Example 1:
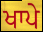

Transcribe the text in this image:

ਖਾਪੇ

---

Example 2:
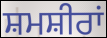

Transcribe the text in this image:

ਸ਼ਮਸ਼ੀਰਾਂ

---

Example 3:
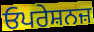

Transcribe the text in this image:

ਓਪਰੇਸ਼ਨਜ਼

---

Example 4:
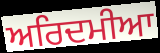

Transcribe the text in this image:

ਅਰਿਦਮੀਆ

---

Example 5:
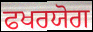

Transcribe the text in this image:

ਫਖਰਯੋਗ